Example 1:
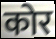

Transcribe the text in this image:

कोर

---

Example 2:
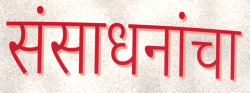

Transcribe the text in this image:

संसाधनांचा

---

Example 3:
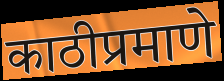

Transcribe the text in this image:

काठीप्रमाणे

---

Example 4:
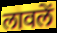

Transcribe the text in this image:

लावलें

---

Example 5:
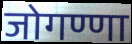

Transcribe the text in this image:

जोगण्णा